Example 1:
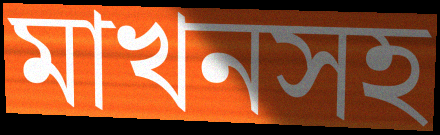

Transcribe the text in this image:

মাখনসহ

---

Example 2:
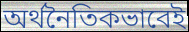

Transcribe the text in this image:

অর্থনৈতিকভাবেই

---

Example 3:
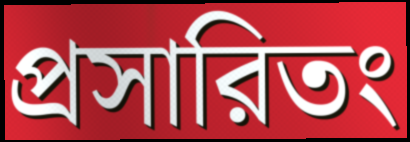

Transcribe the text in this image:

প্রসারিতং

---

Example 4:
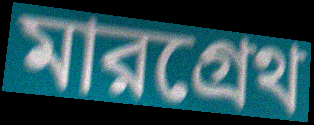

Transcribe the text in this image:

মারগ্রেথ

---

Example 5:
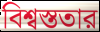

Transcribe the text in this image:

বিশ্বস্ততার